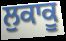
ਲੁਕਾਕੂ